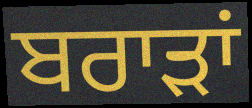
ਬਰਾੜਾਂ